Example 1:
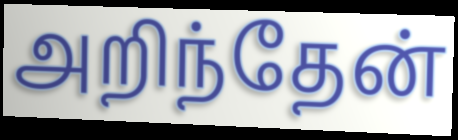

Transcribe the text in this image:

அறிந்தேன்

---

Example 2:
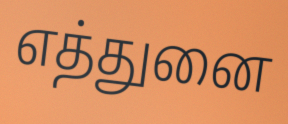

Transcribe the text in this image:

எத்துனை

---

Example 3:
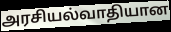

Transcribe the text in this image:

அரசியல்வாதியான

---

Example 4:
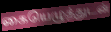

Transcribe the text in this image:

கையெழுத்துடன்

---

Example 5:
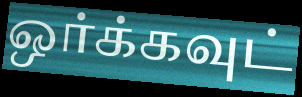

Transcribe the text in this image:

ஒர்க்கவுட்